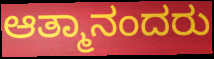
ಆತ್ಮಾನಂದರು